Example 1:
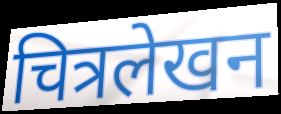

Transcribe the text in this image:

चित्रलेखन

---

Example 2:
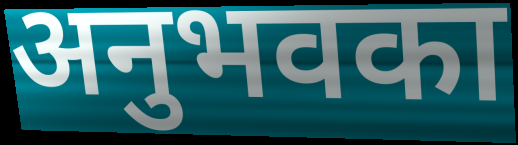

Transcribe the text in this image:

अनुभवका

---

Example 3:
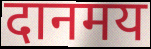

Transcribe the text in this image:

दानमय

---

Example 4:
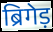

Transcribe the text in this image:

ब्रिगेड़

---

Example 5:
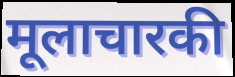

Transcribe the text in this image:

मूलाचारकी